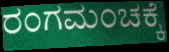
ರಂಗಮಂಚಕ್ಕೆ